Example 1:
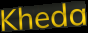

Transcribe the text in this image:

Kheda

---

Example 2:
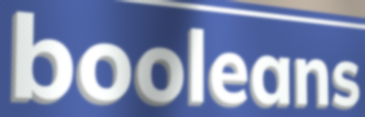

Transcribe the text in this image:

booleans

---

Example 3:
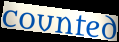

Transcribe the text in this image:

counted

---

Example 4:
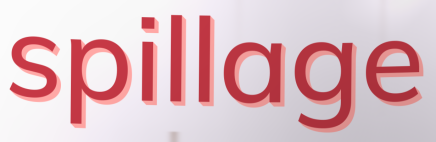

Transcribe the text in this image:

spillage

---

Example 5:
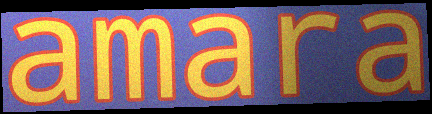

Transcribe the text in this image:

amara